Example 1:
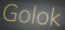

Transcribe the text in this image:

Golok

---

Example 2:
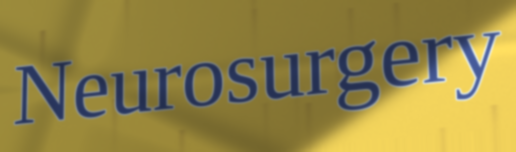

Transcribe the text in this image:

Neurosurgery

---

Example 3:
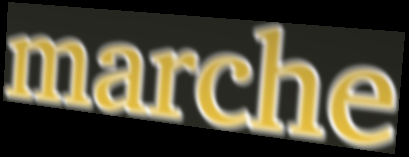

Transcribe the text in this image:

marche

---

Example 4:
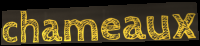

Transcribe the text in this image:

chameaux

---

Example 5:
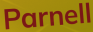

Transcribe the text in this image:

Parnell